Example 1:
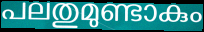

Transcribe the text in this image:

പലതുമുണ്ടാകും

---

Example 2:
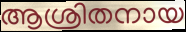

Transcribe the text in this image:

ആശ്രിതനായ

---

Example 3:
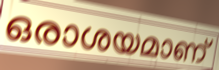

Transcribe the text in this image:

ഒരാശയമാണ്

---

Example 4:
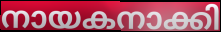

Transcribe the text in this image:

നായകനാക്കി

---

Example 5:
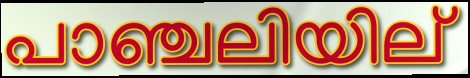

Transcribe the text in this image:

പാഞ്ചലിയില്